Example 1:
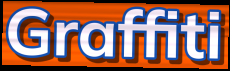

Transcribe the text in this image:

Graffiti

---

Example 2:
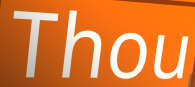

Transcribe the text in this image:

Thou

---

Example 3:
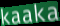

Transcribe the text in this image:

kaaka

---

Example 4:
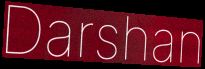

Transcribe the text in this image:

Darshan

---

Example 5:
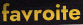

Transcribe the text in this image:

favroite